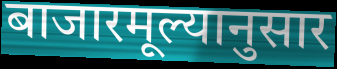
बाजारमूल्यानुसार